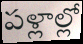
పళ్లాల్లో